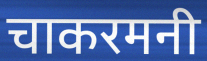
चाकरमनी